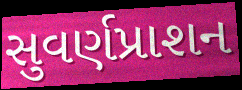
સુવર્ણપ્રાશન